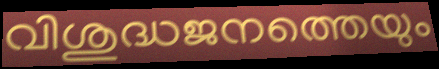
വിശുദ്ധജനത്തെയും